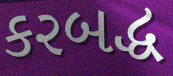
કરબદ્ધ